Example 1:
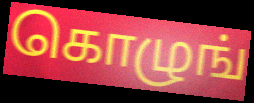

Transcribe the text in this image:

கொழுங்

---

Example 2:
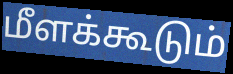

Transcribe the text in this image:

மீளக்கூடும்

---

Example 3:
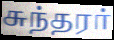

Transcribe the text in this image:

சுந்தரர்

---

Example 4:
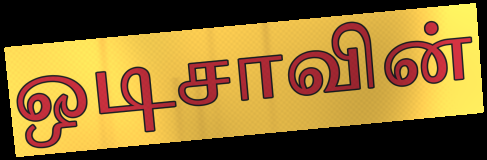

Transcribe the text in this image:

ஒடிசாவின்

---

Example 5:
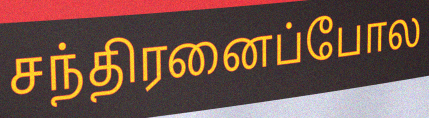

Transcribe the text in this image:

சந்திரனைப்போல